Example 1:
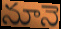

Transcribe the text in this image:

నూనె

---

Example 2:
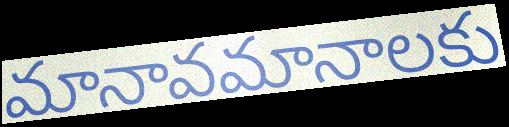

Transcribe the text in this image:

మానావమానాలకు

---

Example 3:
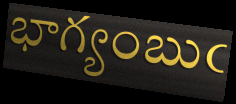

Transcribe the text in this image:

భాగ్యంబుఁ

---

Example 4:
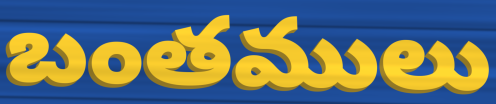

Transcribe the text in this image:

బంతములు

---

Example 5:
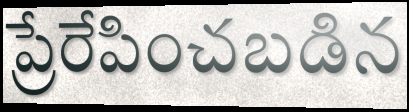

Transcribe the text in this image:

ప్రేరేపించబడిన